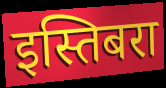
इस्तिबरा